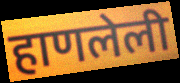
हाणलेली